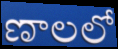
ణాలలో